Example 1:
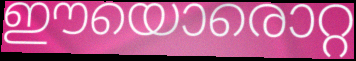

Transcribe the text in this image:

ഈയൊരൊറ്റ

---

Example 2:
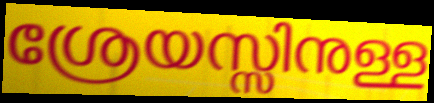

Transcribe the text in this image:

ശ്രേയസ്സിനുള്ള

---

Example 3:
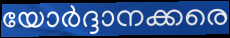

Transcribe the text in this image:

യോർദ്ദാനക്കരെ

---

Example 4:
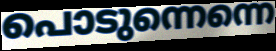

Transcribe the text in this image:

പൊടുന്നെന്നെ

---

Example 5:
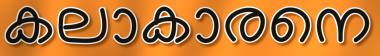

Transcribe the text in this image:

കലാകാരനെ